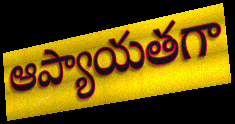
ఆప్యాయతగా